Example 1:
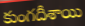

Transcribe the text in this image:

కుంగదీశాయి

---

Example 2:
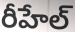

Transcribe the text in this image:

రీహేల్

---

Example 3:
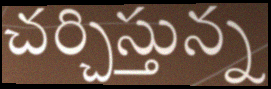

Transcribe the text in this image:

చర్చిస్తున్న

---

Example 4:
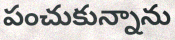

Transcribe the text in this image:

పంచుకున్నాను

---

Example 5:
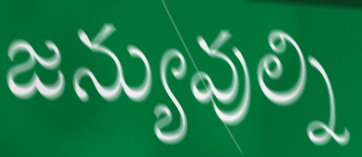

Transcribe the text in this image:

జన్యువుల్ని